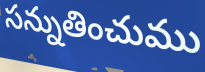
సన్నుతించుము